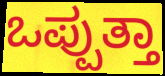
ಒಪ್ಪುತ್ತಾ